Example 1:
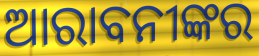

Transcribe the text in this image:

ଆରାବନୀଙ୍କର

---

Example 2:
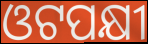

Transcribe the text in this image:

ଓଟପକ୍ଷୀ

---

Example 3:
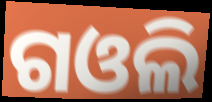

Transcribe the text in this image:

ଗଓଲି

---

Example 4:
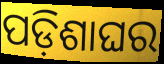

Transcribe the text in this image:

ପଡ଼ିଶାଘର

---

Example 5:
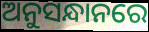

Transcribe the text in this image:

ଅନୁସନ୍ଧାନରେ